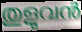
തുളുവൻ